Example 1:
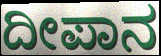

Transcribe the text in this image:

ದೀಪಾನ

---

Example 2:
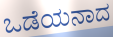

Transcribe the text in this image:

ಒಡೆಯನಾದ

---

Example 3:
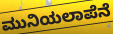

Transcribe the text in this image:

ಮುನಿಯಲಾಪೆನೆ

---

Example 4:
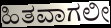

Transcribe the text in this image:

ಹಿತವಾಗಲೀ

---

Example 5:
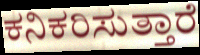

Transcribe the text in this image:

ಕನಿಕರಿಸುತ್ತಾರೆ